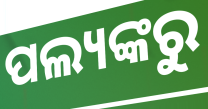
ପଲ୍ୟଙ୍କରୁ